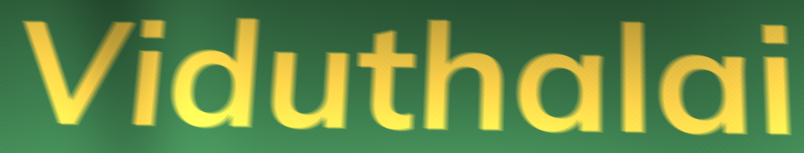
Viduthalai